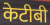
केटीबी